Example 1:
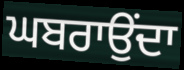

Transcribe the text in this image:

ਘਬਰਾਉਂਦਾ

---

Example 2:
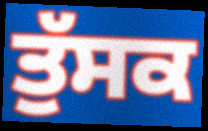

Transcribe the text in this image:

ਤੁੱਸਕ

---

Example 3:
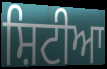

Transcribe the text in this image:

ਸ਼ਿਟੀਆ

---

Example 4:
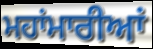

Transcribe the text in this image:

ਮਹਾਂਮਾਰੀਆਂ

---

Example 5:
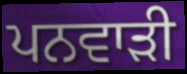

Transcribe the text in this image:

ਪਨਵਾੜੀ